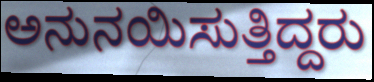
ಅನುನಯಿಸುತ್ತಿದ್ದರು